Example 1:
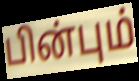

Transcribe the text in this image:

பின்பும்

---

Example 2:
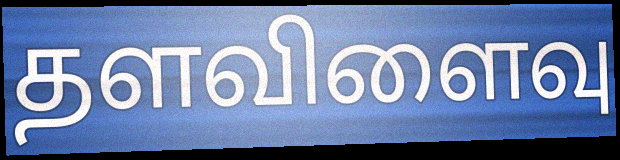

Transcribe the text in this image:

தளவிளைவு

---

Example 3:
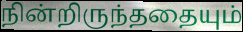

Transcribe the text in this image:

நின்றிருந்ததையும்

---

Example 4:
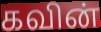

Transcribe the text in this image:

கவின்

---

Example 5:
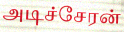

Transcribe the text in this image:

அடிச்சேரன்